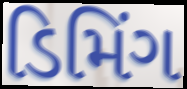
ડિમિંગ